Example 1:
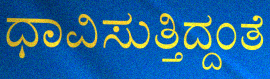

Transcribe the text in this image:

ಧಾವಿಸುತ್ತಿದ್ದಂತೆ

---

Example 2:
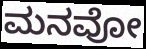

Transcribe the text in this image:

ಮನವೋ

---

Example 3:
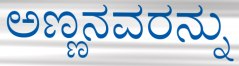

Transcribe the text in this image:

ಅಣ್ಣನವರನ್ನು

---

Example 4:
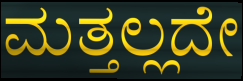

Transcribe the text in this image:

ಮತ್ತಲ್ಲದೇ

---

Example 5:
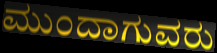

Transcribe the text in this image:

ಮುಂದಾಗುವರು